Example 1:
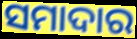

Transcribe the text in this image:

ସମାଦାର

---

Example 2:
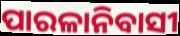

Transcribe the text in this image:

ପାରଳାନିବାସୀ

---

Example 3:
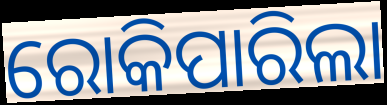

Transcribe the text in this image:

ରୋକିପାରିଲା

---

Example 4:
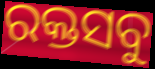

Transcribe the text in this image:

ରକ୍ତସବୁ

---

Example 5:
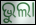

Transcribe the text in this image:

ଭୁଲା